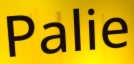
Palie